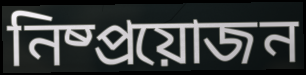
নিষ্প্ৰয়োজন